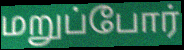
மறுப்போர்